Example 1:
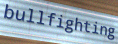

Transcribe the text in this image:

bullfighting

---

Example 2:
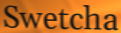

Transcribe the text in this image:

Swetcha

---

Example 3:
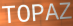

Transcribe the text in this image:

TOPAZ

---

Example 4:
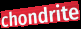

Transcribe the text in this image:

chondrite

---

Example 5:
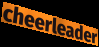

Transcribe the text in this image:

cheerleader